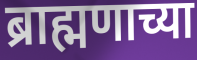
ब्राह्मणाच्या